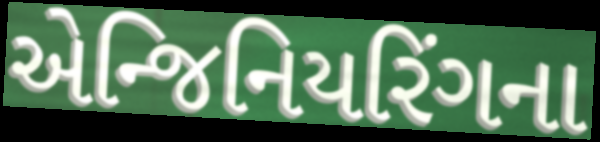
એન્જિનિયરિંગના